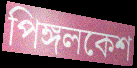
পিঙ্গলকেশ